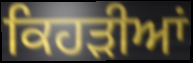
ਕਿਹੜੀਆਂ